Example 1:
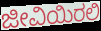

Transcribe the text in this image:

ಜೀವಿಯಿರಲಿ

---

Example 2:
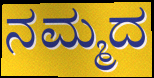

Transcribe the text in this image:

ನಮ್ಮದ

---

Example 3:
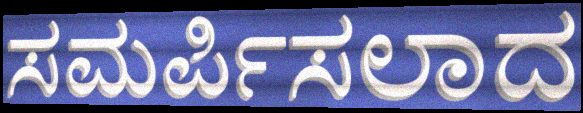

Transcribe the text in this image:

ಸಮರ್ಪಿಸಲಾದ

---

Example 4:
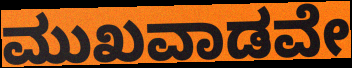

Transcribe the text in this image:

ಮುಖವಾಡವೇ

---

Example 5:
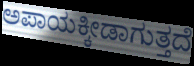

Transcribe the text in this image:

ಅಪಾಯಕ್ಕೀಡಾಗುತ್ತದೆ